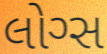
લોગ્સ